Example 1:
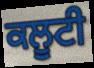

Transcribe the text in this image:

ਕਲੂਟੀ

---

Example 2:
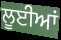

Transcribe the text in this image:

ਲੂਈਆਂ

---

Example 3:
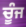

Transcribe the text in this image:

ਚੂੰਜ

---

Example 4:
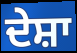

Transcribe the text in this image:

ਦੇਸ਼ਾ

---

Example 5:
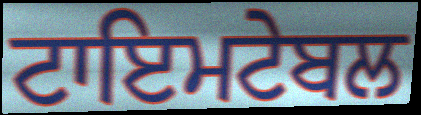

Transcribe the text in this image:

ਟਾਇਮਟੇਬਲ